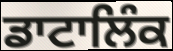
ਡਾਟਾਲਿੰਕ